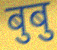
बुबु